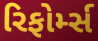
રિફોર્મ્સ